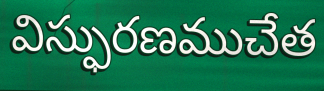
విస్ఫురణముచేత